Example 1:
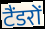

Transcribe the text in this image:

टैंडरों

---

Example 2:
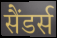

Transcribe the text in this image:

सैंडर्स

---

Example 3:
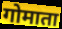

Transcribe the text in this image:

गोमाता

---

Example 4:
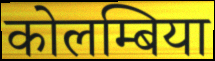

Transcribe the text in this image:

कोलम्बिया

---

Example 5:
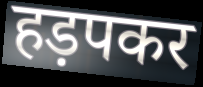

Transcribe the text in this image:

हड़पकर